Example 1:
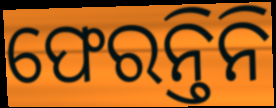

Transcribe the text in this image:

ଫେରନ୍ତିନି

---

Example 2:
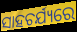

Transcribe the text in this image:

ସାହଚର୍ଯ୍ୟରେ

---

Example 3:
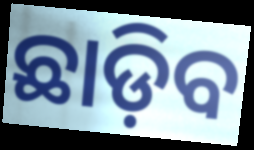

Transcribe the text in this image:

ଛାଡ଼ିବ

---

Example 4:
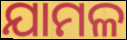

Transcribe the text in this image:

ଯାମଳ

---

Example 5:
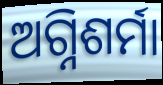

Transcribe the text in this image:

ଅଗ୍ନିଶର୍ମା